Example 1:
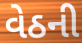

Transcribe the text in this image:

વેઠની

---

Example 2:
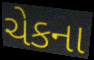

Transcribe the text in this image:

ચેકના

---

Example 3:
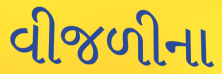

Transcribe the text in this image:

વીજળીના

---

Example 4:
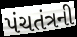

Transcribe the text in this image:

પંચતંત્રની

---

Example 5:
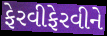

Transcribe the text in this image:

ફેરવીફેરવીને